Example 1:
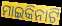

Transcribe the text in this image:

ମାଇକିନାଟି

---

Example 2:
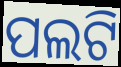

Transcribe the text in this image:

ପଲଟି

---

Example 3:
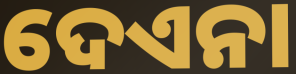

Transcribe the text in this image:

ଦେଏନା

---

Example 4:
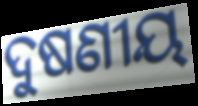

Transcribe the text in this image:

ଦୁଷଣୀୟ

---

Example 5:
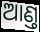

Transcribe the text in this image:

ଆଣ୍ତ